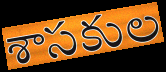
శాసకుల